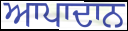
ਆਪਾਦਾਨ